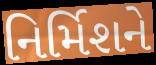
નિર્મિશને